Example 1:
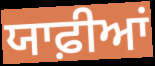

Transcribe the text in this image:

ਯਾਫ਼ੀਆਂ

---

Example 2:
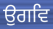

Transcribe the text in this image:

ਉਗਵਿ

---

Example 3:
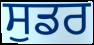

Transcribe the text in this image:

ਸੁਡਰ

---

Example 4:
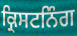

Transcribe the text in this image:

ਕ੍ਰਿਸਟਨਿੰਗ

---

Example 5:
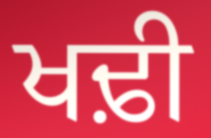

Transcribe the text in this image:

ਖਢ਼ੀ